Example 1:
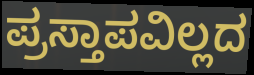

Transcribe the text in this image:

ಪ್ರಸ್ತಾಪವಿಲ್ಲದ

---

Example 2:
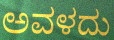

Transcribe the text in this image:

ಅವಳದು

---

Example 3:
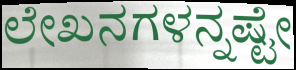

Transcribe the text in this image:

ಲೇಖನಗಳನ್ನಷ್ಟೇ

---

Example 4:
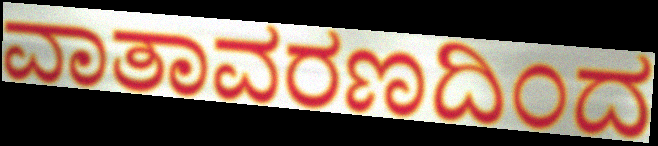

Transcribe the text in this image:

ವಾತಾವರಣದಿಂದ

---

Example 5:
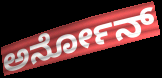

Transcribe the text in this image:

ಅರ್ನೋನ್